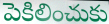
పెకిలించుకు